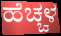
ಹೆಚ್ಚಳ